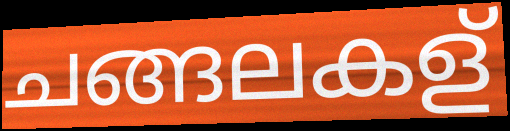
ചങ്ങലകള്